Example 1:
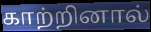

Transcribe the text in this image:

காற்றினால்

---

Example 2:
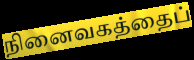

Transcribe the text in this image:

நினைவகத்தைப்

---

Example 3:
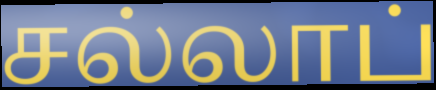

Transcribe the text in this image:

சல்லாப்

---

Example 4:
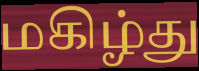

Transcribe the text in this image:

மகிழ்து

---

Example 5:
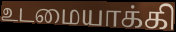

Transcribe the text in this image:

உடமையாக்கி